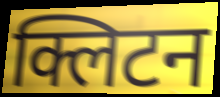
क्लिटन